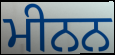
ਮੀਨਨ